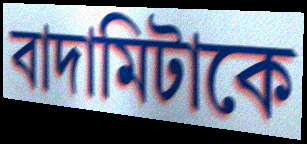
বাদামিটাকে